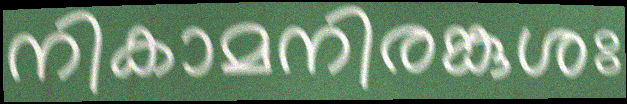
നികാമനിരങ്കുശഃ